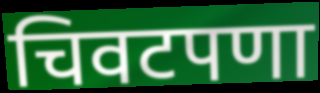
चिवटपणा